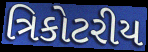
ત્રિકોટરીય